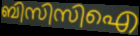
ബിസിസിഐ